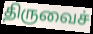
திருவைச்